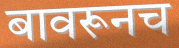
बावरूनच